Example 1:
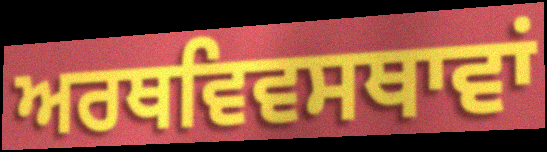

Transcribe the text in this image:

ਅਰਥਵਿਵਸਥਾਵਾਂ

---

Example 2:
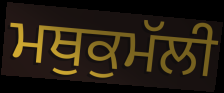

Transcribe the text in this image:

ਮਥੁਕੁਮੱਲੀ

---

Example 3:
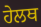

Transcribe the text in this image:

ਹੇਲਥ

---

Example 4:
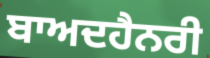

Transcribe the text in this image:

ਬਾਅਦਹੈਨਰੀ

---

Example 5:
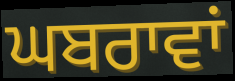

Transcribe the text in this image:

ਘਬਰਾਵਾਂ